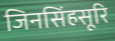
जिनसिंहसूरि